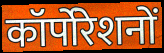
कॉर्पोरेशनों